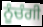
ਨੂੰਚੰਗੀ